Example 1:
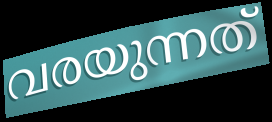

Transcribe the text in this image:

വരയുന്നത്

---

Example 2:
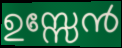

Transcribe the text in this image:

ഉസ്സേൻ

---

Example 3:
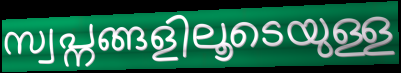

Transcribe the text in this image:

സ്വപ്നങ്ങളിലൂടെയുള്ള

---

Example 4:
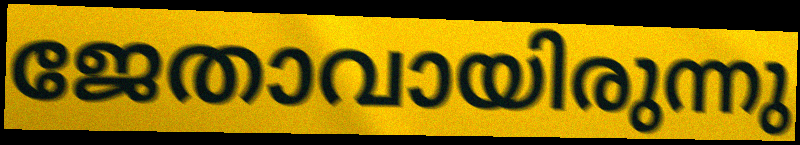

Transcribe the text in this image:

ജേതാവായിരുന്നു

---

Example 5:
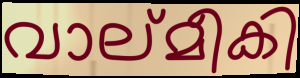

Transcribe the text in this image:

വാല്മീകി